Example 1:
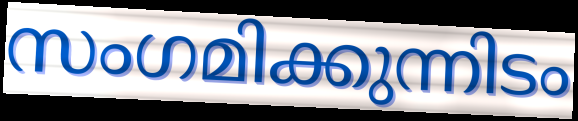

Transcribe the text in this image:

സംഗമിക്കുന്നിടം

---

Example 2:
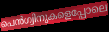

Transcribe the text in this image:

പെൻഗ്വിനുകളെപ്പോലെ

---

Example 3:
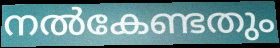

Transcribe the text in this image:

നൽകേണ്ടതും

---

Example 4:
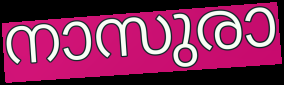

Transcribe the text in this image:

നാസുരാ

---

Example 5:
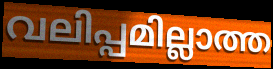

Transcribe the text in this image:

വലിപ്പമില്ലാത്ത